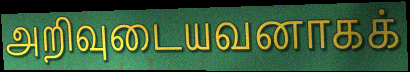
அறிவுடையவனாகக்